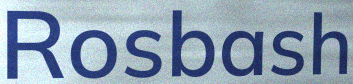
Rosbash